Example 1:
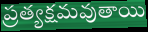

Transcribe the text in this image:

ప్రత్యక్షమవుతాయి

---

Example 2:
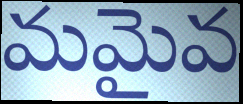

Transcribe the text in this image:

మమైవ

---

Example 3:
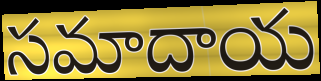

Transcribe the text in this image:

సమాదాయ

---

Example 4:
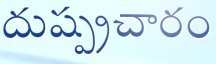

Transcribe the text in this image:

దుష్ప్రచారం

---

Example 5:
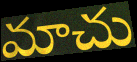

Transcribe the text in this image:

మాచు